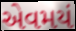
એવમયં